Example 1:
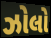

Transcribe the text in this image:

ઝોલો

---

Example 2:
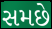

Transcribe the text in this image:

સમછે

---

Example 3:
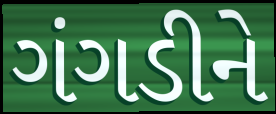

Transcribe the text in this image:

ગંગડીને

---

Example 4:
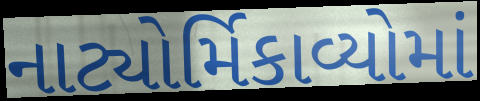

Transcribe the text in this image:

નાટ્યોર્મિકાવ્યોમાં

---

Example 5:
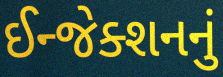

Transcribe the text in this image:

ઈન્જેક્શનનું